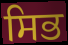
ਸਿਭ